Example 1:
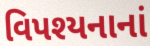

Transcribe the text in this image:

વિપશ્યનાનાં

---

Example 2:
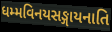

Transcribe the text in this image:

ધમ્મવિનયસઙ્ગાયનાતિ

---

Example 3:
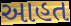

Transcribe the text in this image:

આહત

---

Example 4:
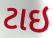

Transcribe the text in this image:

ટાઇ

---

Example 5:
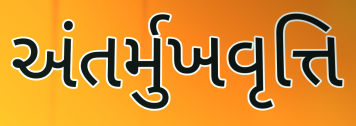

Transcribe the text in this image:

અંતર્મુખવૃત્તિ